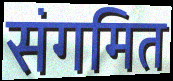
संगमित